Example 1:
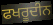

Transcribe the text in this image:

ਫਖਰੂਦੀਨ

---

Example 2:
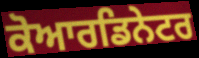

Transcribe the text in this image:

ਕੋਆਰਡਿਨੇਟਰ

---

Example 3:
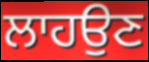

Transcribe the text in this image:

ਲਾਹਉਣ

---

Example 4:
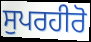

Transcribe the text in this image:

ਸੁਪਰਹੀਰੋ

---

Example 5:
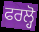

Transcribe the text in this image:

ਫਰਲ੍ਹੋ